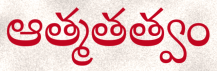
ఆత్మతత్వం